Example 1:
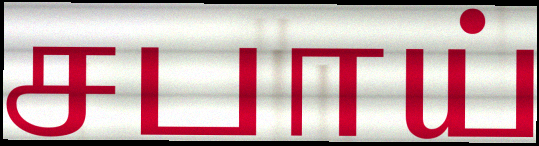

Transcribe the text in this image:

சபாய்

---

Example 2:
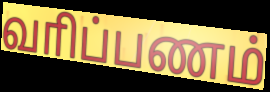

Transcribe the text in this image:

வரிப்பணம்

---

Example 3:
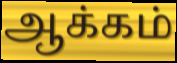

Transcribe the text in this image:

ஆக்கம்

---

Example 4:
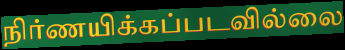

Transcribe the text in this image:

நிர்ணயிக்கப்படவில்லை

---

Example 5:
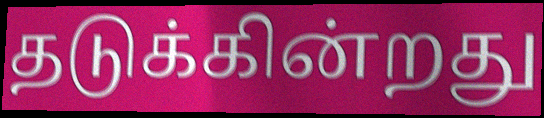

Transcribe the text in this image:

தடுக்கின்றது